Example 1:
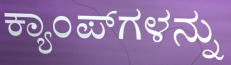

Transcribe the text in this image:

ಕ್ಯಾಂಪ್‍ಗಳನ್ನು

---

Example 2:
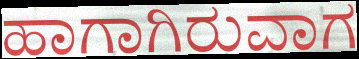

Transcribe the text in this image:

ಹಾಗಾಗಿರುವಾಗ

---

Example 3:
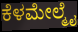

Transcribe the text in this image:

ಕೆಳಮೇಲ್ಮೈ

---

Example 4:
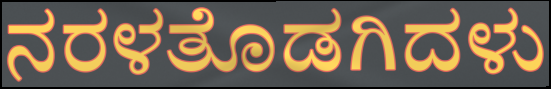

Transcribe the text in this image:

ನರಳತೊಡಗಿದಳು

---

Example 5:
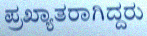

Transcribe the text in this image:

ಪ್ರಖ್ಯಾತರಾಗಿದ್ದರು